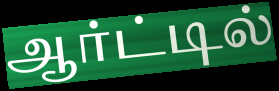
ஆர்ட்டில்